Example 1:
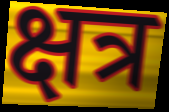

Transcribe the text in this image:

क्षत्र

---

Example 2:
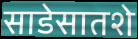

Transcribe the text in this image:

साडेसातशे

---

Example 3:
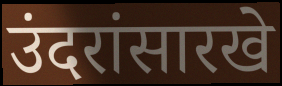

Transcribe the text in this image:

उंदरांसारखे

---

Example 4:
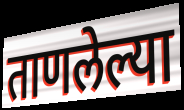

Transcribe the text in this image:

ताणलेल्या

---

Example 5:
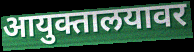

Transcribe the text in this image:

आयुक्तालयावर